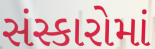
સંસ્કારોમાં